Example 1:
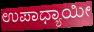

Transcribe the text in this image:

ಉಪಾಧ್ಯಾಯೀ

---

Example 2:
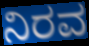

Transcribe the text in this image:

ನಿರವ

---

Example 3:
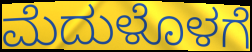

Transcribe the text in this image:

ಮೆದುಳೊಳಗೆ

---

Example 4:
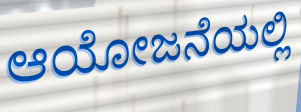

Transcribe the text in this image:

ಆಯೋಜನೆಯಲ್ಲಿ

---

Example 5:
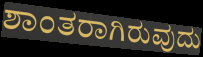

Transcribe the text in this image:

ಶಾಂತರಾಗಿರುವುದು